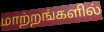
மாற்றங்களில்